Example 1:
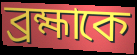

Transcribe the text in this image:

ব্রহ্মাকে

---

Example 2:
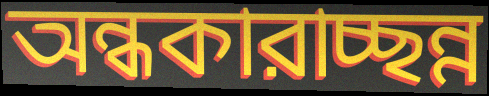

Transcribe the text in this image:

অন্ধকারাচ্ছন্ন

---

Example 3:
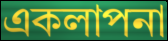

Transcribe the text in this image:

একলাপনা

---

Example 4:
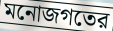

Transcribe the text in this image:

মনোজগতের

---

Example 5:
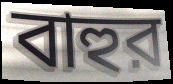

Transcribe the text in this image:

বাহুর